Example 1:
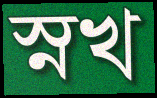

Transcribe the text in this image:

স্নখ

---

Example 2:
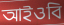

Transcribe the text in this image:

আইওবি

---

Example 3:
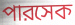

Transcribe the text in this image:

পারসেক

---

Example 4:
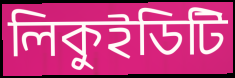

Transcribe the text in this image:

লিকুইডিটি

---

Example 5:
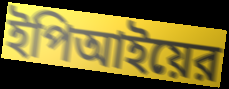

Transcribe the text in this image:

ইপিআইয়ের